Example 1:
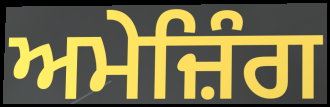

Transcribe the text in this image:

ਅਮੇਜ਼ਿੰਗ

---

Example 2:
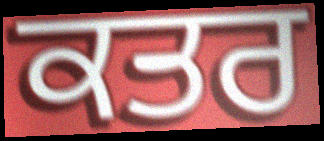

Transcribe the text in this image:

ਕਤਰ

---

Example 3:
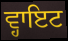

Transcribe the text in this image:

ਵ੍ਹਾਇਟ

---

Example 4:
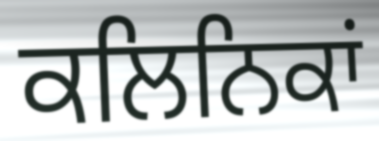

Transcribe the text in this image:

ਕਲਿਨਿਕਾਂ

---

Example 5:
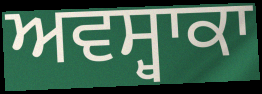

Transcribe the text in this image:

ਅਵਸ੍ਥਾਕਾ